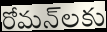
రోమన్‌లకు